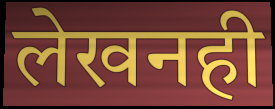
लेखनही